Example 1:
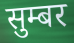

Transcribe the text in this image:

सुम्बर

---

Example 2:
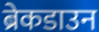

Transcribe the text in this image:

ब्रेकडाउन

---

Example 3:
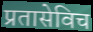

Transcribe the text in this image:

प्रतासेविच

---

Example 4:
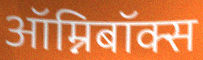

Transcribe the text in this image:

ऑम्निबॉक्स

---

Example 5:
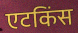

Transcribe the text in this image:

एटकिंस